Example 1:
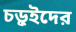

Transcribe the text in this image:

চড়ুইদের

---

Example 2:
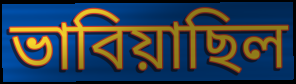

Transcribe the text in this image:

ভাবিয়াছিল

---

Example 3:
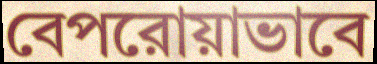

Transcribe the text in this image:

বেপরোয়াভাবে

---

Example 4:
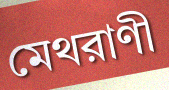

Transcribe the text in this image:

মেথরাণী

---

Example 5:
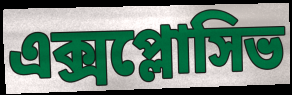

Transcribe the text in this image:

এক্সপ্লোসিভ